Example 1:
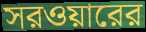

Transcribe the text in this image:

সরওয়ারের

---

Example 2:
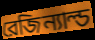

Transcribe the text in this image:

রেজিন্যাল্ড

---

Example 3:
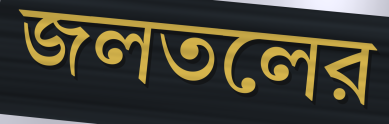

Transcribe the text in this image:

জলতলের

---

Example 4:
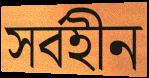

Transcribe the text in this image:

সর্বহীন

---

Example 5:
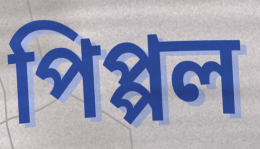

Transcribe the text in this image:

পিপ্পল